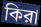
কিরা